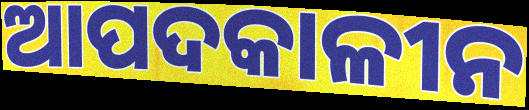
ଆପଦକାଳୀନ